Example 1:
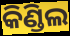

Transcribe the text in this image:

କିଣ୍ଡିଲ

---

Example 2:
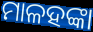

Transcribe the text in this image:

ମାଳହଙ୍କା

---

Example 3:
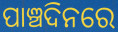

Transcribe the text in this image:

ପାଞ୍ଚଦିନରେ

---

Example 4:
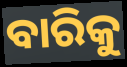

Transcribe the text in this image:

ବାରିକୁ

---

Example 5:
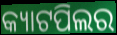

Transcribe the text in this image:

କ୍ୟାଟପିଲର